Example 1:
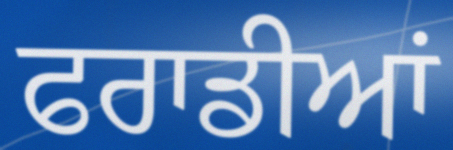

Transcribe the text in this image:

ਫਰਾਡੀਆਂ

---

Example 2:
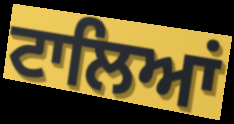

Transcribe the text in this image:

ਟਾਲਿਆਂ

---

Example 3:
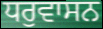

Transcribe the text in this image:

ਧਰੁਵਾਸਨ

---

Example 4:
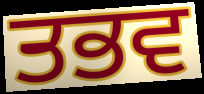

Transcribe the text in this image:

ਤਭਵ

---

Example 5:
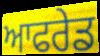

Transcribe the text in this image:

ਆਫਰੇਡ